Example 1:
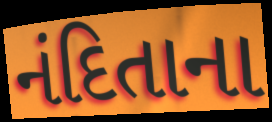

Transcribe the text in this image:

નંદિતાના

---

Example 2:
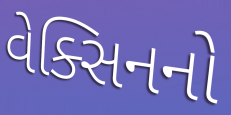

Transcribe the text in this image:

વેક્સિનનો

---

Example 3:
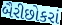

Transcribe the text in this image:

બૈરીછોકરાં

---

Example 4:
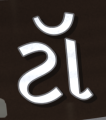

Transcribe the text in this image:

ટૉ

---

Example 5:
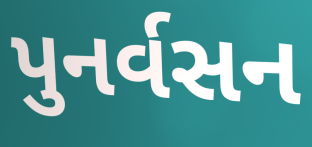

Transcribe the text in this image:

પુનર્વસન